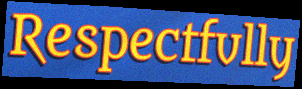
Respectfully